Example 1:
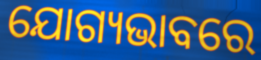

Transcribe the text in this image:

ଯୋଗ୍ୟଭାବରେ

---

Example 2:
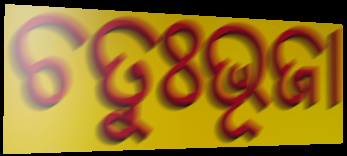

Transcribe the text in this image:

ଚତୁଃଭୂଜା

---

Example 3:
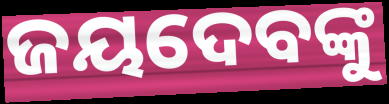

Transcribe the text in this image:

ଜୟଦେବଙ୍କୁ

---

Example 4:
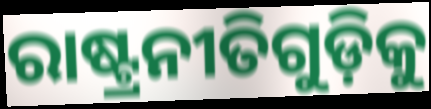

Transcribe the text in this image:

ରାଷ୍ଟ୍ରନୀତିଗୁଡ଼ିକୁ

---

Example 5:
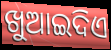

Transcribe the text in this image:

ଖୁଆଇଦିଏ